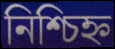
নিশ্চিহ্ন